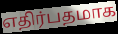
எதிர்பதமாக